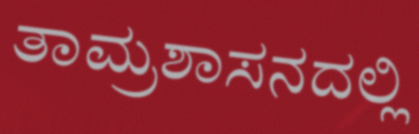
ತಾಮ್ರಶಾಸನದಲ್ಲಿ